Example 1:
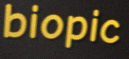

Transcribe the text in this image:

biopic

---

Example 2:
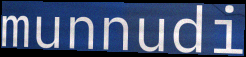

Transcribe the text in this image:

munnudi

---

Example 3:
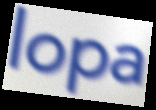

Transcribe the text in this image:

lopa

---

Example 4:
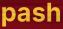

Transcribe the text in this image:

pash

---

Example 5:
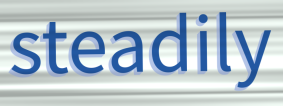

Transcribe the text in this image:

steadily